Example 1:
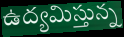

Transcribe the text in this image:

ఉద్యమిస్తున్న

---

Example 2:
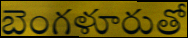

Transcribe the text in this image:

బెంగళూరుతో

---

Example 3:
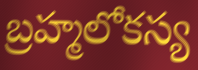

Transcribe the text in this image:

బ్రహ్మలోకస్య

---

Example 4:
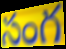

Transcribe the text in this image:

సంగ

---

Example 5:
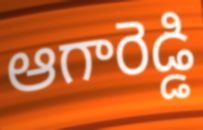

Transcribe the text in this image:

ఆగారెడ్డి